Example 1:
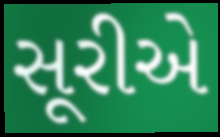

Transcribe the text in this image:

સૂરીએ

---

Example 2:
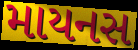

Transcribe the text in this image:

માયનસ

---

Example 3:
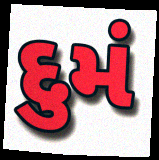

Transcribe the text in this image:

દુમં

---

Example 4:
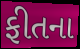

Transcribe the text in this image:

ફીતના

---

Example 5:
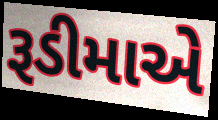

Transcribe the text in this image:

રૂડીમાએ